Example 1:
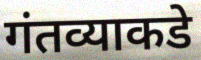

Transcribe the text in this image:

गंतव्याकडे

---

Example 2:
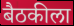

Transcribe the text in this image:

बैठकीला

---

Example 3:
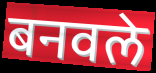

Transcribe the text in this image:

बनवले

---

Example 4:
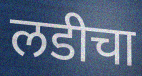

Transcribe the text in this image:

लडीचा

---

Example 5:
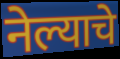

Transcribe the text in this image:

नेल्याचे